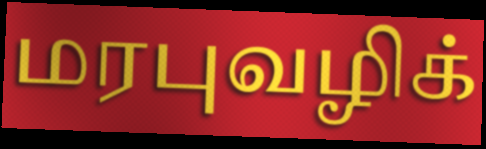
மரபுவழிக்